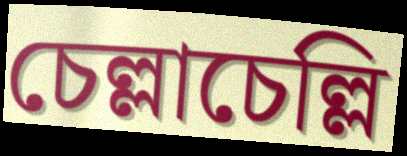
চেল্লাচেল্লি